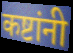
कष्टांनी